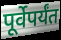
पूर्वेपर्यंत